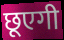
छूएगी